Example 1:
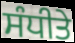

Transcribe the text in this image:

ਸੰਧੀਤੇ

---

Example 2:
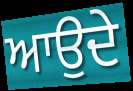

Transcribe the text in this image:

ਆਉਦੇ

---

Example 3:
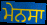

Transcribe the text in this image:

ਮੇਨਸਾ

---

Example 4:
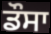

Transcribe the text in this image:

ਡੌਸਾ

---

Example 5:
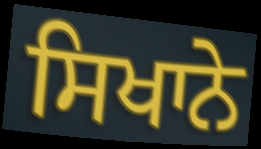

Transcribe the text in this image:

ਸਿਖਾਨੇ